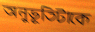
অনুভূতিটাকে